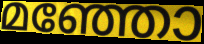
മഞ്ഞോ